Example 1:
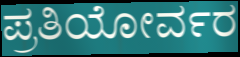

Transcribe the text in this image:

ಪ್ರತಿಯೋರ್ವರ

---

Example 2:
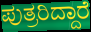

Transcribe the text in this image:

ಪುತ್ರರಿದ್ದಾರೆ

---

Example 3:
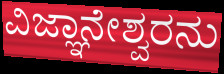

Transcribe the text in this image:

ವಿಜ್ಞಾನೇಶ್ವರನು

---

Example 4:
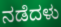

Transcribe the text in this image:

ನಡೆದಳು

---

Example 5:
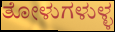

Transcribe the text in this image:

ತೋಳುಗಳುಳ್ಳ